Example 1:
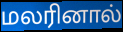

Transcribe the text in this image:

மலரினால்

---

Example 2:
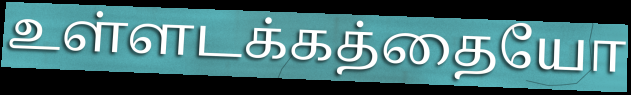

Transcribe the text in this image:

உள்ளடக்கத்தையோ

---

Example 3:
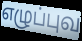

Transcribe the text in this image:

எழுப்புவ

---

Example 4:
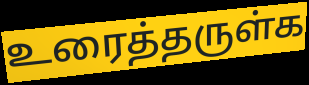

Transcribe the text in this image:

உரைத்தருள்க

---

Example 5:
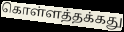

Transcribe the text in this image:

கொள்ளத்தக்கது